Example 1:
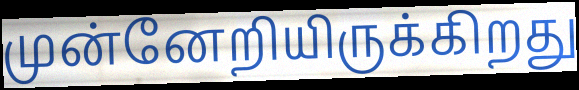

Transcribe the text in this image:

முன்னேறியிருக்கிறது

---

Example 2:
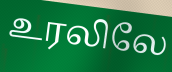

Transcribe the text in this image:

உரலிலே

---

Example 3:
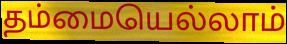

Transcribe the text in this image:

தம்மையெல்லாம்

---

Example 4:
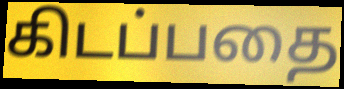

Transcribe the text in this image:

கிடப்பதை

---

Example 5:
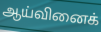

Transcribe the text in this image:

ஆய்வினைக்